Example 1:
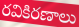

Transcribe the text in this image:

రవికిరణాలు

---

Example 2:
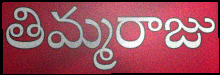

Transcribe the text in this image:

తిమ్మరాజు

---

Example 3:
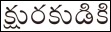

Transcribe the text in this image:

క్షురకుడికి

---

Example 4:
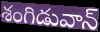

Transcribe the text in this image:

శంగిడువాన్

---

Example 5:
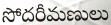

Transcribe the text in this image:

సోదరీమణులు